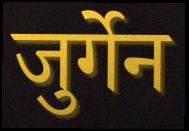
जुर्गेन